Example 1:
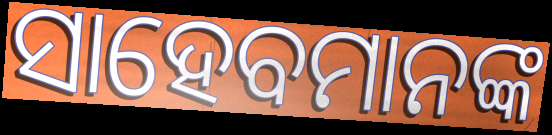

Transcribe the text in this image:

ସାହେବମାନଙ୍କ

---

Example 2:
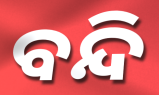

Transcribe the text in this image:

ବନ୍ଦି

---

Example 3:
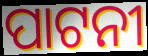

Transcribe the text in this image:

ପାଟନୀ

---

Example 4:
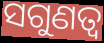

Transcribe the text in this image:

ସଗୁଣତ୍ଵ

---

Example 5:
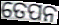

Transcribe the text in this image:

ତେପନ